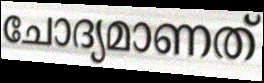
ചോദ്യമാണത്